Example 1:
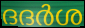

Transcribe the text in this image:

ദദർശ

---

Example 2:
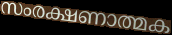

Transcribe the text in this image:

സംരക്ഷണാത്മക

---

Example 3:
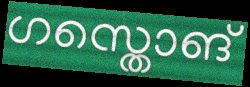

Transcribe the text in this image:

ഗസ്തൊങ്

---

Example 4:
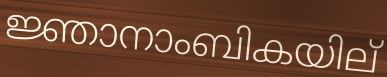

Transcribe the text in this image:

ജ്ഞാനാംബികയില്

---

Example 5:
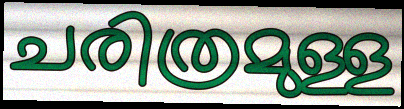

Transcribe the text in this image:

ചരിത്രമുള്ള